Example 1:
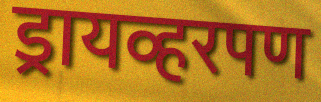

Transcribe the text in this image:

ड्रायव्हरपण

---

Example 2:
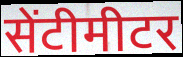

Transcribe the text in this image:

सेंटीमीटर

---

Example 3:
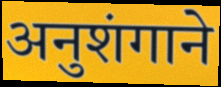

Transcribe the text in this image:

अनुशंगाने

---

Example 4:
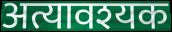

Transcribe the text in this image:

अत्यावश्‍यक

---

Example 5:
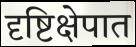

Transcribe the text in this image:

दृष्टिक्षेपात